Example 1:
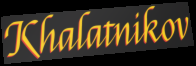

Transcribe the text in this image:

Khalatnikov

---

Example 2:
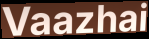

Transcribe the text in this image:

Vaazhai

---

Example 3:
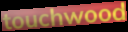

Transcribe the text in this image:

touchwood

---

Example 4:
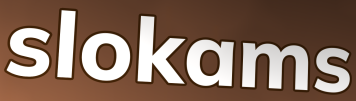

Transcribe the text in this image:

slokams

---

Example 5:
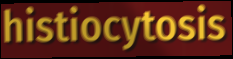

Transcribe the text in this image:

histiocytosis